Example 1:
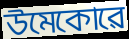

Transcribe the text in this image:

উমেকোৱে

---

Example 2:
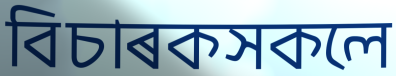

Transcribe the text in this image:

বিচাৰকসকলে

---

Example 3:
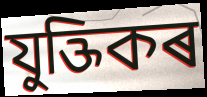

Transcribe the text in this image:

যুক্তিকৰ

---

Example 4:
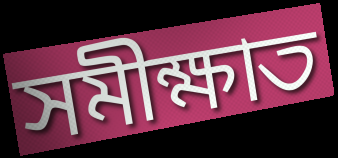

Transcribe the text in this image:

সমীক্ষাত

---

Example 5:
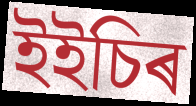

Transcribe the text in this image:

ইইচিৰ